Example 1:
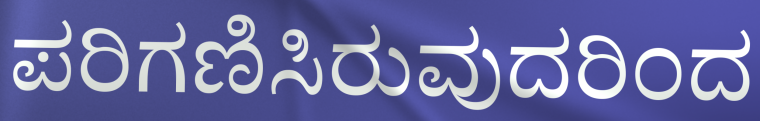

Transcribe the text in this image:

ಪರಿಗಣಿಸಿರುವುದರಿಂದ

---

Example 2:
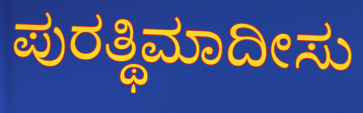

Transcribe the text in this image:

ಪುರತ್ಥಿಮಾದೀಸು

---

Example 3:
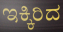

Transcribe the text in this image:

ಇಕ್ಕಿರಿದ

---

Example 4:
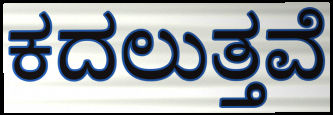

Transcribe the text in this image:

ಕದಲುತ್ತವೆ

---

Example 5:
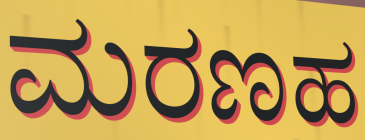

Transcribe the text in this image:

ಮರಣಹ